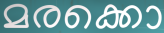
മരക്കൊ